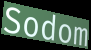
Sodom